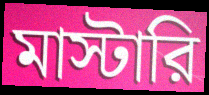
মাস্টারি